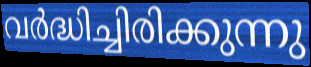
വർദ്ധിച്ചിരിക്കുന്നു